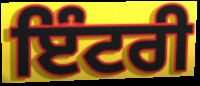
ਇੰਟਰੀ